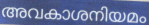
അവകാശനിയമം